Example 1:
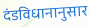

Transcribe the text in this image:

दंडविधानानुसार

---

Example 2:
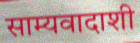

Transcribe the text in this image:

साम्यवादाशी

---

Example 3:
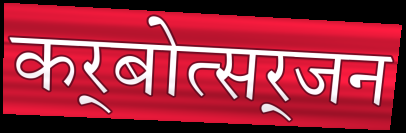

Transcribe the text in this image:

कर्बोत्सर्जन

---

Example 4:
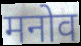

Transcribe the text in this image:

मनोव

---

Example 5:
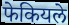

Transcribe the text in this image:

फेकियले